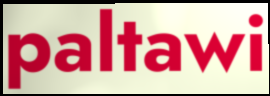
paltawi